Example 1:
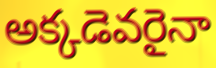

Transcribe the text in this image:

అక్కడెవరైనా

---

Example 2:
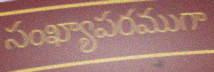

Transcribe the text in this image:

సంఖ్యాపరముగా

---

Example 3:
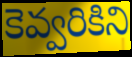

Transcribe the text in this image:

కెవ్వరికిని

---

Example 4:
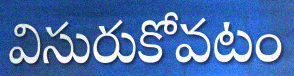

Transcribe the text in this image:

విసురుకోవటం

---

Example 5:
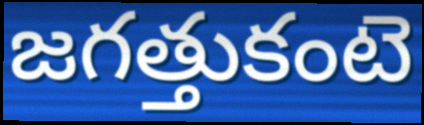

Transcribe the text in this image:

జగత్తుకంటె